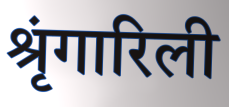
श्रृंगारिली